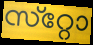
സ്‌റ്റോ